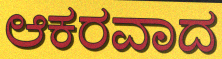
ಆಕರವಾದ